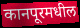
कानपूरमधील